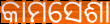
କାମସେଶା